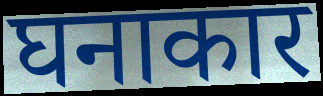
घनाकार